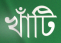
খাঁটি